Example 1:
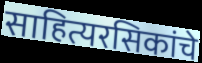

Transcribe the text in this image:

साहित्यरसिकांचे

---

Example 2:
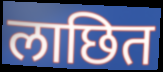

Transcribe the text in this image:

लाछित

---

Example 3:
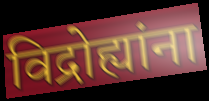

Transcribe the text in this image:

विद्रोह्यांना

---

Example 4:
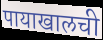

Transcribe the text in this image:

पायाखालची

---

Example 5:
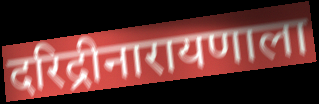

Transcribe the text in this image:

दरिद्रीनारायणाला